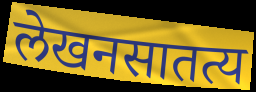
लेखनसातत्य